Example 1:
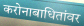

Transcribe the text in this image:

करोनाबाधितांवर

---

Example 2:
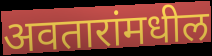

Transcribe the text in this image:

अवतारांमधील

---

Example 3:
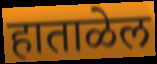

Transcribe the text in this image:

हाताळेल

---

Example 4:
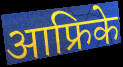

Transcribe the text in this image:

आफ्रिके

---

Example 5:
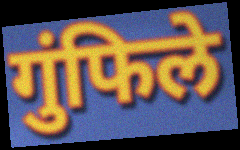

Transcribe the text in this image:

गुंफिले